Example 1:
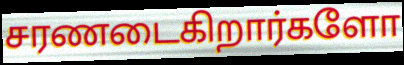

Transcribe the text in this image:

சரணடைகிறார்களோ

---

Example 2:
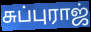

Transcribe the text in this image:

சுப்புராஜ்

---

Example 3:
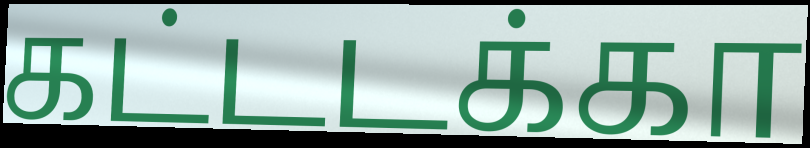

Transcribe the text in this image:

கட்டடக்கா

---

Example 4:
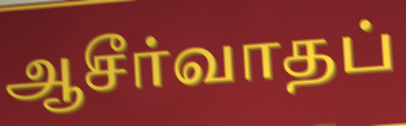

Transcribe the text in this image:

ஆசீர்வாதப்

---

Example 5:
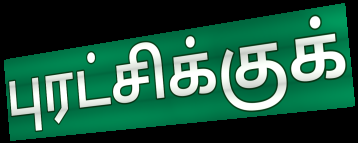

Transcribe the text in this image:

புரட்சிக்குக்